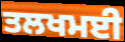
ਤਲਖਮਈ